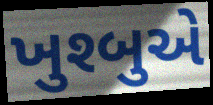
ખુશ્બુએ